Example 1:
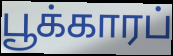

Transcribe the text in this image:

பூக்காரப்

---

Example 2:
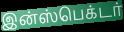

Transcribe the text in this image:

இன்ஸ்பெக்டர்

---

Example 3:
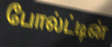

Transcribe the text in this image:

போல்ட்டின்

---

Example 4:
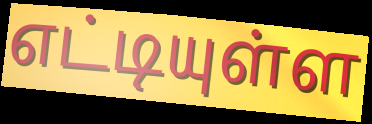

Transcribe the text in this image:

எட்டியுள்ள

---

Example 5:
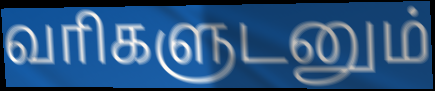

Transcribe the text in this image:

வரிகளுடனும்